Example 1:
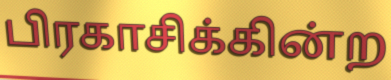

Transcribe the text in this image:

பிரகாசிக்கின்ற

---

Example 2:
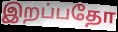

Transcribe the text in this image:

இறப்பதோ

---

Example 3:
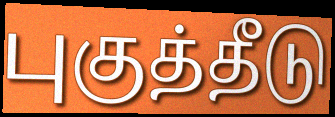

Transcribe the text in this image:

புகுத்தீடு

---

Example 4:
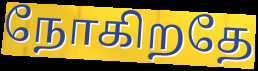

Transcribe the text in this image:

நோகிறதே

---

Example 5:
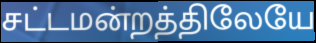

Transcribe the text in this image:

சட்டமன்றத்திலேயே